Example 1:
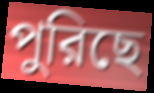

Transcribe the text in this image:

পুরিছে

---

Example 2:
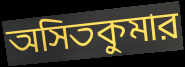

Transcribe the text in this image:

অসিতকুমার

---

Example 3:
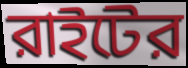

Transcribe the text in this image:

রাইটের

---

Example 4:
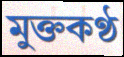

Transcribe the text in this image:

মুক্তকণ্ঠ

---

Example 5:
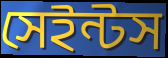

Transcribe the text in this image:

সেইন্টস